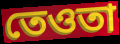
তেওতা